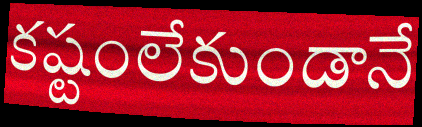
కష్టంలేకుండానే